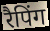
रैपिंग